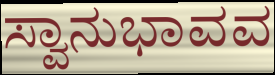
ಸ್ವಾನುಭಾವವ